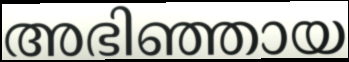
അഭിഞ്ഞായ